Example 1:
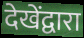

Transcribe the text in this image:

देखेंद्वारा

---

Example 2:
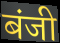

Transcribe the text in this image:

बंजी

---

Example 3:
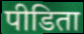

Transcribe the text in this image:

पीडिता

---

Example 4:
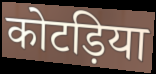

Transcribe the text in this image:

कोटड़िया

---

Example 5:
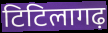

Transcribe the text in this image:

टिटिलागढ़